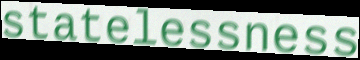
statelessness